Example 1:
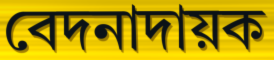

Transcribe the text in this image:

বেদনাদায়ক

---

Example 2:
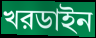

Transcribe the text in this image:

খরডাইন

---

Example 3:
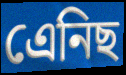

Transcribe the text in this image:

এেনিছ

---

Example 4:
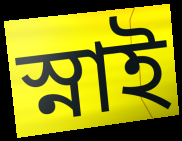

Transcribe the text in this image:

স্নাই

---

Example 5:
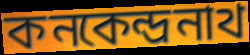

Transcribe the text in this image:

কনকেন্দ্রনাথ